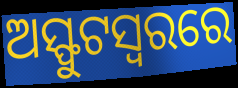
ଅସ୍ଫୁଟସ୍ୱରରେ